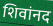
शिवांनद